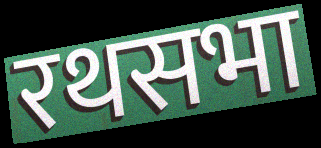
रथसभा